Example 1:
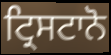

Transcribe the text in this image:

ਟ੍ਰਿਸਟਾਨੋ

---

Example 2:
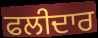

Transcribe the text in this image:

ਫਲੀਦਾਰ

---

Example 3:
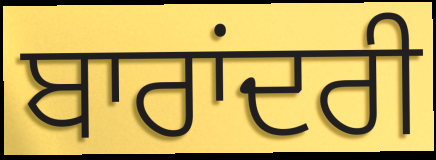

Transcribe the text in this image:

ਬਾਰਾਂਦਰੀ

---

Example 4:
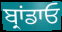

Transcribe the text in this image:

ਬ੍ਰਾਂਡਾਓ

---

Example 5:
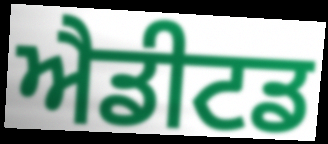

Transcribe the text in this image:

ਐਡੀਟਡ